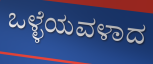
ಒಳ್ಳೆಯವಳಾದ